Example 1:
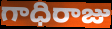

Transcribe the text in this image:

గాధిరాజు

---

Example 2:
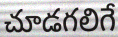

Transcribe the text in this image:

చూడగలిగే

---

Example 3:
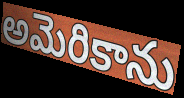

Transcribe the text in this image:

అమెరికాను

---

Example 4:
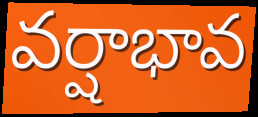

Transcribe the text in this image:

వర్షాభావ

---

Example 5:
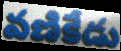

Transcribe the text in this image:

వణికేడు